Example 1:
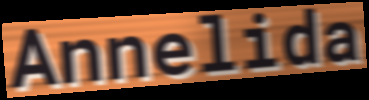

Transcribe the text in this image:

Annelida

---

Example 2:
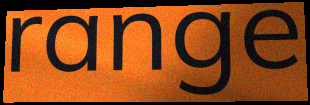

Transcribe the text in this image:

range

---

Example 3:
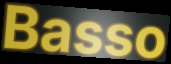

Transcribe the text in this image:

Basso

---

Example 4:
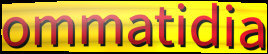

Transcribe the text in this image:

ommatidia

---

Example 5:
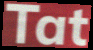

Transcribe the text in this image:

Tat